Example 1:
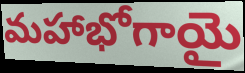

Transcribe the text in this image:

మహాభోగాయై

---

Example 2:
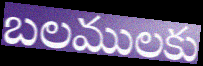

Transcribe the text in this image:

బలములకు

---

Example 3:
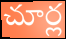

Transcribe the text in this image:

చూర్ల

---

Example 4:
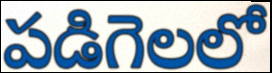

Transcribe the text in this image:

పడిగెలలో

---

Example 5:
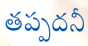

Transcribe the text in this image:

తప్పదనీ